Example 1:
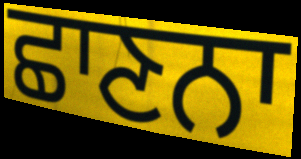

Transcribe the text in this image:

ਛਾਣਨਾ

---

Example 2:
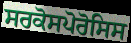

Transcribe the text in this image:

ਸਰਕੋਸਪੋਰੋਸਿਸ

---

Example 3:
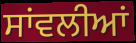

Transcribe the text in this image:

ਸਾਂਵਲੀਆਂ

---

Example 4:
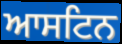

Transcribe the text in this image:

ਆਸਟਿਨ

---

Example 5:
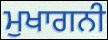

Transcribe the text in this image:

ਮੁਖਾਗਨੀ